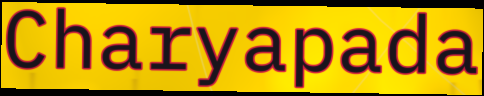
Charyapada